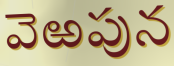
వెఱపున